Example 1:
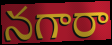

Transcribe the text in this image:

నగారా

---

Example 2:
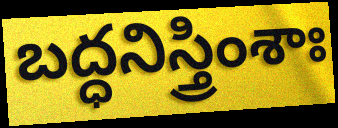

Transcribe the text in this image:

బద్ధనిస్త్రింశాః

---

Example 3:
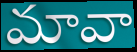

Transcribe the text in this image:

మావా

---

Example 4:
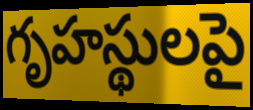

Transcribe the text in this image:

గృహస్థులపై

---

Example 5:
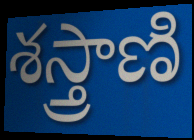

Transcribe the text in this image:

శస్త్రాణి